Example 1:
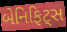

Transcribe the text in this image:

બેનિફિટ્સ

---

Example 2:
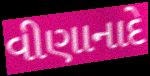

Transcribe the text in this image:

વીણાનાદે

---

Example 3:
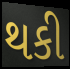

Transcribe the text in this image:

થકી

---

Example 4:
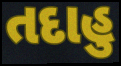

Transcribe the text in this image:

તદાહુ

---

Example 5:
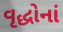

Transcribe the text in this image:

વૃદ્ધોનાં